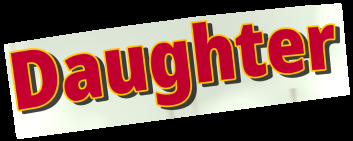
Daughter